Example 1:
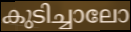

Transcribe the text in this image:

കുടിച്ചാലോ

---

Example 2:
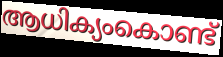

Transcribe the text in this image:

ആധിക്യംകൊണ്ട്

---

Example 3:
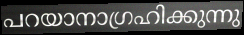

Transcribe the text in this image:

പറയാനാഗ്രഹിക്കുന്നു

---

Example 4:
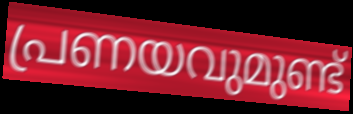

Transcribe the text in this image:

പ്രണയവുമുണ്ട്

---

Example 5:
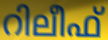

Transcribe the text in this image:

റിലീഫ്